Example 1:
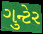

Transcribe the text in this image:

ગુન્ટેર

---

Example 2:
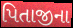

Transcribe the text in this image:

પિતાજીના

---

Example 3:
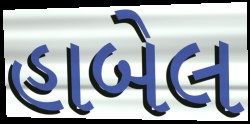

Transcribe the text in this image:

હાબેલ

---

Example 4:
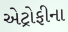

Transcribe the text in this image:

એટ્રોફીના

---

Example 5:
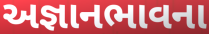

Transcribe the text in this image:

અજ્ઞાનભાવના